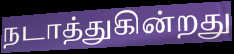
நடாத்துகின்றது